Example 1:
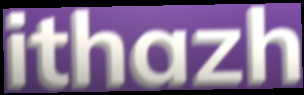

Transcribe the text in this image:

ithazh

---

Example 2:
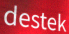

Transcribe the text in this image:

destek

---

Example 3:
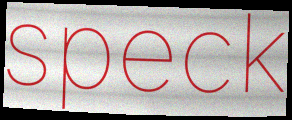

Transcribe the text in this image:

speck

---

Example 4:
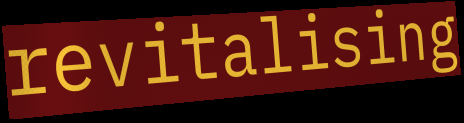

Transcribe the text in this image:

revitalising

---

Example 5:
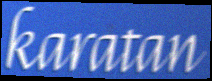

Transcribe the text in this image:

karatan